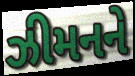
ઝીમનને